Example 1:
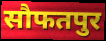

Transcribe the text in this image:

सौफतपुर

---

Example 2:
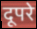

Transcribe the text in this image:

दूपरे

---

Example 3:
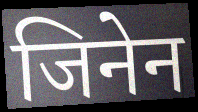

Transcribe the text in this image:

जिनेन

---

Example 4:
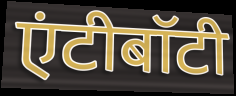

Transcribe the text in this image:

एंटीबॉटी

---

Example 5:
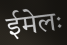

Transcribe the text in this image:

ईमेलः